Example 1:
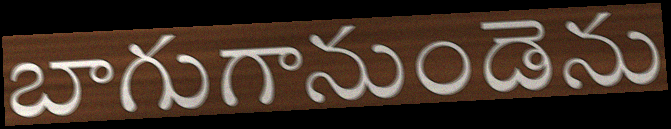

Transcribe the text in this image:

బాగుగానుండెను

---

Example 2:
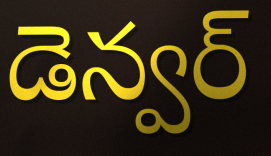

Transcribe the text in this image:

డెన్వర్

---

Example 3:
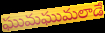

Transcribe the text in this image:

ఘుమఘుమలాడే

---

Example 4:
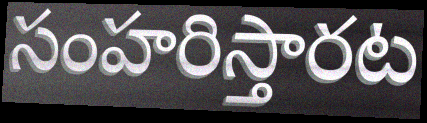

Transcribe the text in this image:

సంహరిస్తారట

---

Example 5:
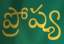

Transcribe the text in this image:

ప్రోష్య